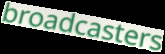
broadcasters